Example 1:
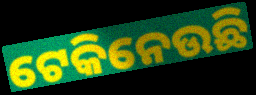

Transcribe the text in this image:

ଟେକିନେଉଛି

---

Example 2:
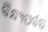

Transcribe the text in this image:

ବିନ୍ଧ୍ୟପର୍ବତ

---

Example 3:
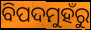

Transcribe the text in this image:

ବିପଦମୁହଁରୁ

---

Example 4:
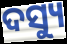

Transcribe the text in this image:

ଦସ୍ୟୁ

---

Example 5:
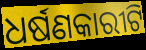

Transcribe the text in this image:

ଧର୍ଷଣକାରୀଟି